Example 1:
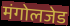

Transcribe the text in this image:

मंगोलजेड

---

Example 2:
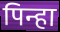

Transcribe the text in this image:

पिन्हा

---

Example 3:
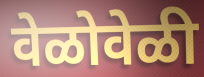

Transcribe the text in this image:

वेळोवेळी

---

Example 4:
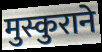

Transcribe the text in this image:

मुस्‍कुराने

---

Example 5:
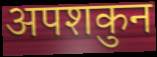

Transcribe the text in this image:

अपशकुन